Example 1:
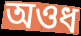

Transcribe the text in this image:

অওধ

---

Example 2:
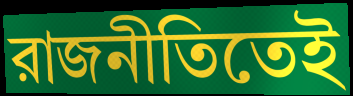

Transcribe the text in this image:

রাজনীতিতেই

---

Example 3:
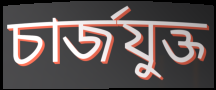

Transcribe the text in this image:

চার্জযুক্ত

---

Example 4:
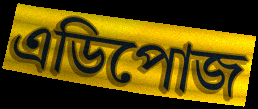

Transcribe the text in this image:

এডিপোজ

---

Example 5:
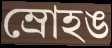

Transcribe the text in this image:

ম্রোহঙ